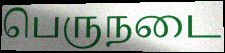
பெருநடை